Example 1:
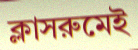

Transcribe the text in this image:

ক্লাসরুমেই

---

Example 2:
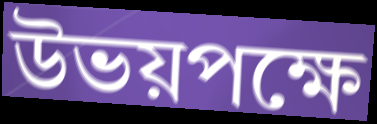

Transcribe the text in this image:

উভয়পক্ষে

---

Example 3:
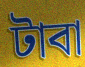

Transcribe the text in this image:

টাবা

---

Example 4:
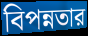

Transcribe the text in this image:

বিপন্নতার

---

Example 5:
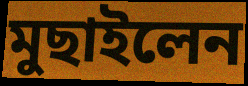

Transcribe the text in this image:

মুছাইলেন